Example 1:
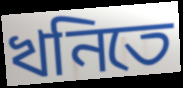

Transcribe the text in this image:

খনিতে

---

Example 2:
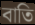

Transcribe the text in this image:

বাতি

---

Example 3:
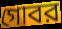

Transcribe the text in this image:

গোবর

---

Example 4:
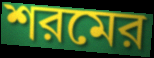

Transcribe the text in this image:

শরমের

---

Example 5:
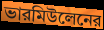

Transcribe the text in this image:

ভারমিউলেনের